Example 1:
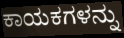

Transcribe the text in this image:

ಕಾಯಕಗಳನ್ನು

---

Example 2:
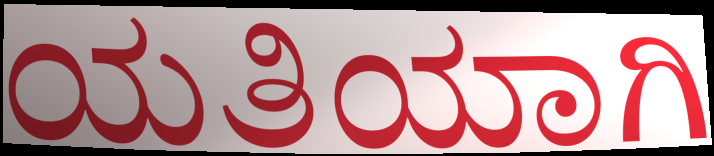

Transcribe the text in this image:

ಯತಿಯಾಗಿ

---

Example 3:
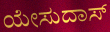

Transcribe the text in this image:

ಯೇಸುದಾಸ್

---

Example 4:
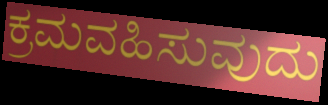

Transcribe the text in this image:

ಕ್ರಮವಹಿಸುವುದು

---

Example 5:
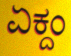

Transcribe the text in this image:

ಏಕ್ದಂ